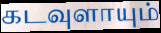
கடவுளாயும்